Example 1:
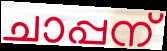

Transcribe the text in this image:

ചാപ്പന്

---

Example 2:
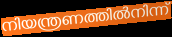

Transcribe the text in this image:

നിയന്ത്രണത്തിൽനിന്ന്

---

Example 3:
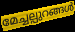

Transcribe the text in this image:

മേച്ചല്പുറങ്ങൾ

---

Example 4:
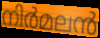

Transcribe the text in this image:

നിർമലൻ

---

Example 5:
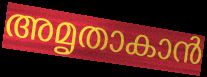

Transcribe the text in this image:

അമൃതാകാൻ